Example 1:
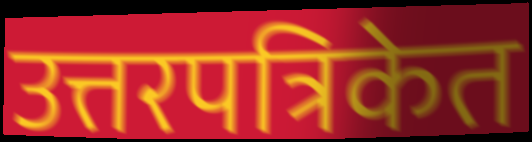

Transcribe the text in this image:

उत्तरपत्रिकेत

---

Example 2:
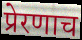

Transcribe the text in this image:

प्रेरणाच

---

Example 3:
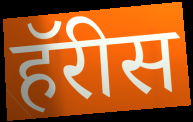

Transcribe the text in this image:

हॅरीस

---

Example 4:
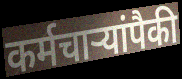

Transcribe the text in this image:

कर्मचार्‍यांपैकी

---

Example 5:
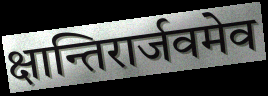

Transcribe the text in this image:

क्षान्तिरार्जवमेव